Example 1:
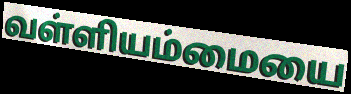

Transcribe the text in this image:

வள்ளியம்மையை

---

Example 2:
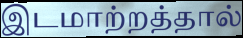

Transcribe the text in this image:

இடமாற்றத்தால்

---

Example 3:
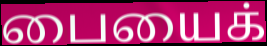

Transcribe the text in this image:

பையைக்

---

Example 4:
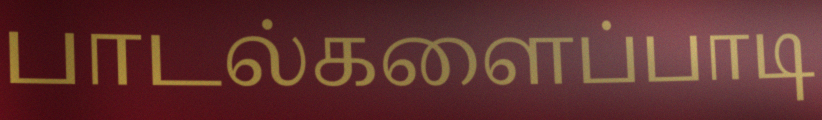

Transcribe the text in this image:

பாடல்களைப்பாடி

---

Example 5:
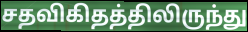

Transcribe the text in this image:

சதவிகிதத்திலிருந்து